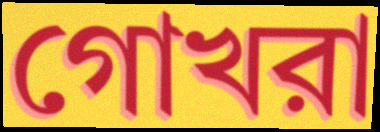
গোখরা